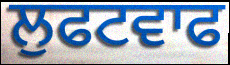
ਲੁਫਟਵਾਫ